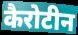
कैरोटीन